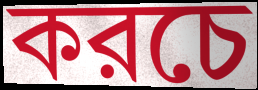
করচে